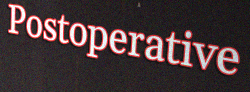
Postoperative